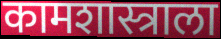
कामशास्त्राला